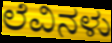
ಲೆವಿನಳು